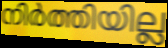
നിർത്തിയില്ല